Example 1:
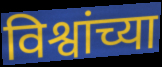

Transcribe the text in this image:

विश्वांच्या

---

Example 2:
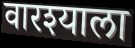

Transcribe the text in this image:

वारश्याला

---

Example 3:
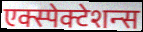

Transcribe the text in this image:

एक्स्पेक्टेशन्स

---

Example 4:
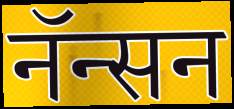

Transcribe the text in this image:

नॅन्सन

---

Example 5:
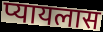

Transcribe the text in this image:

प्यायलास